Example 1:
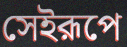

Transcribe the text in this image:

সেইরূপে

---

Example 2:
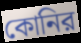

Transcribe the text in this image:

কোনির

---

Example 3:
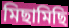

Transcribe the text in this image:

মিছামিছি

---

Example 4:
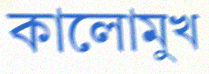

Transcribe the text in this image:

কালোমুখ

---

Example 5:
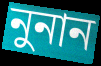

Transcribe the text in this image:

নুনান